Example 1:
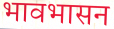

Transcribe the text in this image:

भावभासन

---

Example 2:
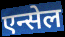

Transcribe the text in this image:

एन्सेल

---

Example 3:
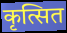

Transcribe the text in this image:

कृत्सित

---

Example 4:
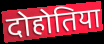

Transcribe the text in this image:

दोहोतिया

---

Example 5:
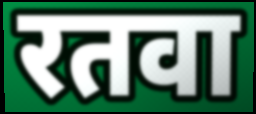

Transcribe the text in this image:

रतवा